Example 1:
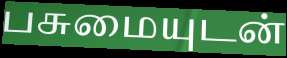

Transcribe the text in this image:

பசுமையுடன்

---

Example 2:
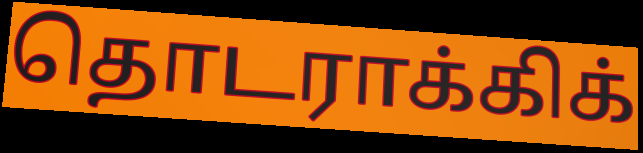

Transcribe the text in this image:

தொடராக்கிக்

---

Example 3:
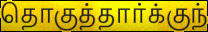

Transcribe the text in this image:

தொகுத்தார்க்குந்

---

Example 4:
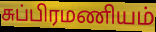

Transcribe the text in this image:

சுப்பிரமணியம்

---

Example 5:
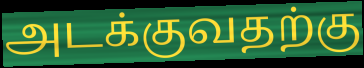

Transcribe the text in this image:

அடக்குவதற்கு